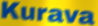
Kurava